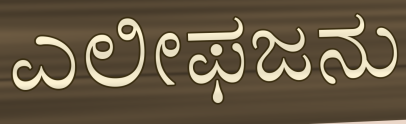
ಎಲೀಫಜನು